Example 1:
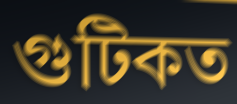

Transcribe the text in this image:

গুটিকত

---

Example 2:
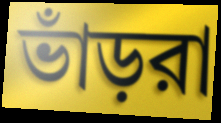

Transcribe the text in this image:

ভাঁড়রা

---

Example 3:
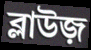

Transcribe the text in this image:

ব্লাউজ়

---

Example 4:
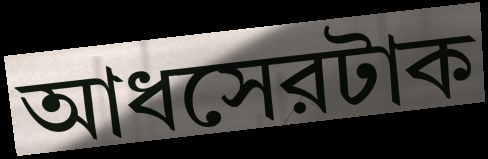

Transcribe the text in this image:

আধসেরটাক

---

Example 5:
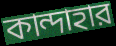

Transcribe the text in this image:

কান্দাহার